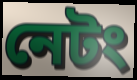
নেটং